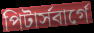
পিটার্সবার্গে